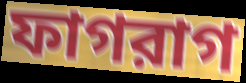
ফাগরাগ